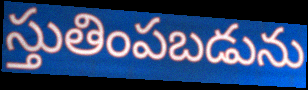
స్తుతింపబడును